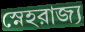
স্নেহরাজ্য